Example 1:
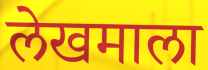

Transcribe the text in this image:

लेखमाला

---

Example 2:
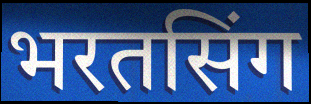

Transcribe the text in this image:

भरतसिंग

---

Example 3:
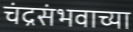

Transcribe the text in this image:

चंद्रसंभवाच्या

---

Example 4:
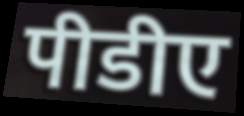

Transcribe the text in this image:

पीडीए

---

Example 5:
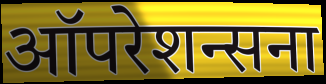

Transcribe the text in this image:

ऑपरेशन्सना